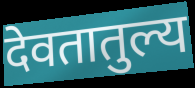
देवतातुल्य